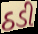
ઠડી